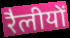
रैलीयों